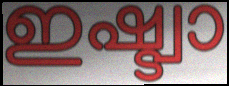
ഇഷ്ട്വാ